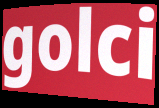
golci